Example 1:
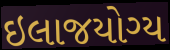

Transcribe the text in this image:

ઇલાજયોગ્ય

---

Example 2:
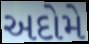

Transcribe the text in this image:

અદોમે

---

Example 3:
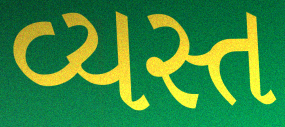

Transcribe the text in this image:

વ્યસ્ત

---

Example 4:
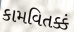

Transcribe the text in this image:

કામવિતક્કં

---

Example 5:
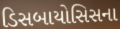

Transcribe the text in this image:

ડિસબાયોસિસના